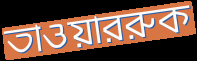
তাওয়াররুক